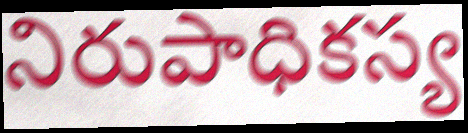
నిరుపాధికస్య